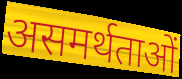
असमर्थताओं